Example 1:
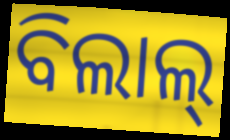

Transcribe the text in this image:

ବିଲାଲ୍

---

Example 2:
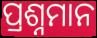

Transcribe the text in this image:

ପ୍ରଶ୍ନମାନ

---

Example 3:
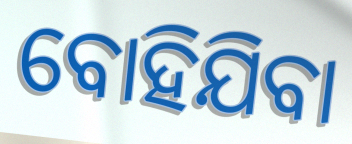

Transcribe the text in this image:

ବୋହିଯିବା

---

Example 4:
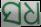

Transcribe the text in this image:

ସଧ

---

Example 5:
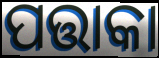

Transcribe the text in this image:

ପତ୍ତାକା